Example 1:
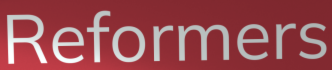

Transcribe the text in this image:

Reformers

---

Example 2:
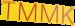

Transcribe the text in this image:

TMMK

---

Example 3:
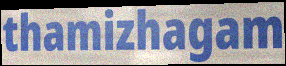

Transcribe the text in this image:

thamizhagam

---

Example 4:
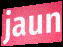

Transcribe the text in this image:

jaun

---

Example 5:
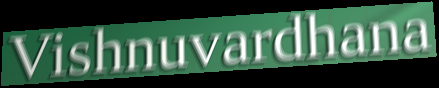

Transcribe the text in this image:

Vishnuvardhana